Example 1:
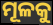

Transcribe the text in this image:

ମୂଳକୁ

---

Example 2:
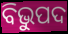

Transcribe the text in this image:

ବିଭୁପଦ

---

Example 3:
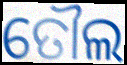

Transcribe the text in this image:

ତୌଲ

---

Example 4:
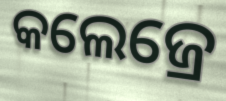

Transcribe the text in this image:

କଲେଜ୍ରେ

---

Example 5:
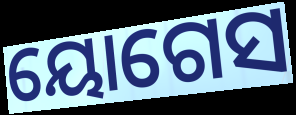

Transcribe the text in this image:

ୟୋଗେସ